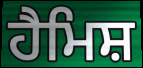
ਹੈਮਿਸ਼